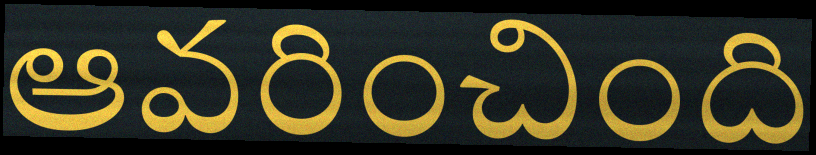
ఆవరించింది